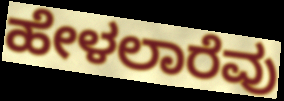
ಹೇಳಲಾರೆವು